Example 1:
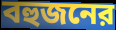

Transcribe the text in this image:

বহুজনের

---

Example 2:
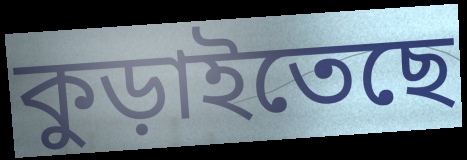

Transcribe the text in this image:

কুড়াইতেছে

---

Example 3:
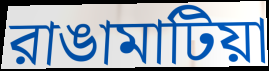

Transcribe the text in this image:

রাঙামাটিয়া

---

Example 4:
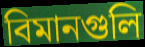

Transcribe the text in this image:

বিমানগুলি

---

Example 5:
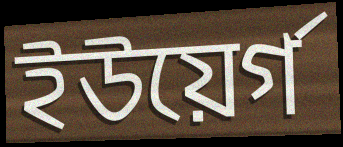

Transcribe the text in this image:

ইউয়ের্গ